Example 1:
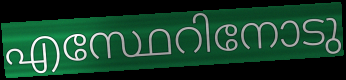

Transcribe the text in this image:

എസ്ഥേറിനോടു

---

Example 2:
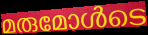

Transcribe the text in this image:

മരുമോൾടെ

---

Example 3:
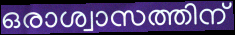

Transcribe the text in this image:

ഒരാശ്വാസത്തിന്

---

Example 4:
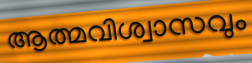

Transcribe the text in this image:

ആത്മവിശ്വാസവും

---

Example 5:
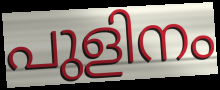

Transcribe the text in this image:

പുളിനം